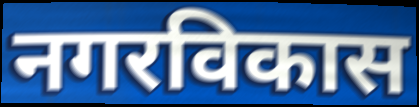
नगरविकास